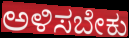
ಅಳಿಸಬೇಕು